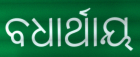
ବଧାର୍ଥାୟ